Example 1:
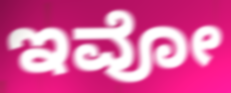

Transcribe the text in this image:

ಇವೋ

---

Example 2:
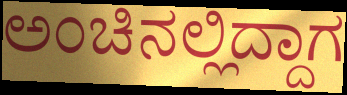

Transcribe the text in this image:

ಅಂಚಿನಲ್ಲಿದ್ದಾಗ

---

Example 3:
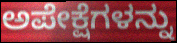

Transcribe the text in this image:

ಅಪೇಕ್ಷೆಗಳನ್ನು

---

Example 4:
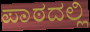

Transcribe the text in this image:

ಪಾಠದಲ್ಲಿ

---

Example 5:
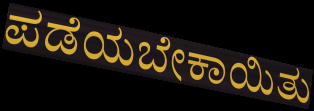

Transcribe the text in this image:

ಪಡೆಯಬೇಕಾಯಿತು